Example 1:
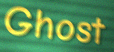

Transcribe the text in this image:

Ghost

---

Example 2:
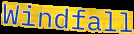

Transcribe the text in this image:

Windfall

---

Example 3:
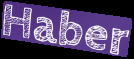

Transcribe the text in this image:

Haber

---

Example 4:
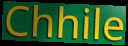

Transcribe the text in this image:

Chhile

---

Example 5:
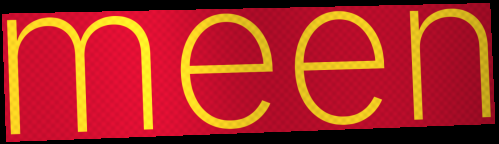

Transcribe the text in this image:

meen